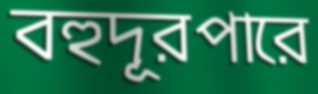
বহুদূরপারে